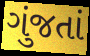
ગુંજતાં